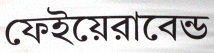
ফেইয়েরাবেন্ড